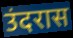
उंदरास